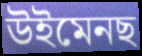
উইমেনছ